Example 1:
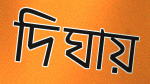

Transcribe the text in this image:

দিঘায়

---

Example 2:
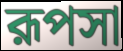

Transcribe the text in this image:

রূপসা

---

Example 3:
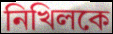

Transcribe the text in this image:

নিখিলকে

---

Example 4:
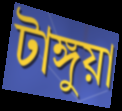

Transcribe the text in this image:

টাঙ্গুয়া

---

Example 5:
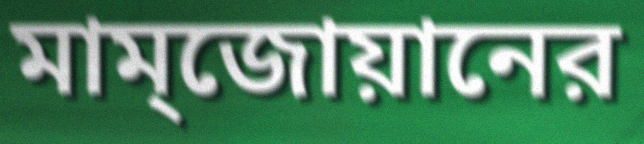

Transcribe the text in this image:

মাম্জোয়ানের